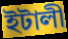
ইটালী